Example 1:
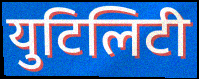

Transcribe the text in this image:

युटिलिटी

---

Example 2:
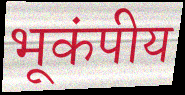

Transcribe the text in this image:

भूकंपीय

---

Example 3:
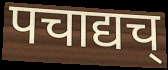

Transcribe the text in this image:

पचाद्यच्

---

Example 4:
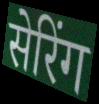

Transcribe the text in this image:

सेरिंग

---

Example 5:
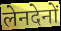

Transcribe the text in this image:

लेनदेनों